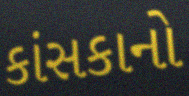
કાંસકાનો